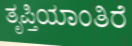
ತೃಪ್ತಿಯಾಂತಿರೆ